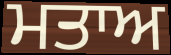
ਮਤਾਅ